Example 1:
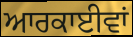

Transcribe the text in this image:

ਆਰਕਾਈਵਾਂ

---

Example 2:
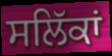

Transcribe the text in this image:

ਸਲਿੱਕਾਂ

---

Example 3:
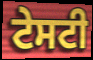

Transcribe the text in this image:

ਟੇਸਟੀ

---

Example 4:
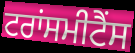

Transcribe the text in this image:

ਟਰਾਂਸਮੀਟੈਂਸ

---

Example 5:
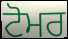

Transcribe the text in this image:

ਟੋਮਰ